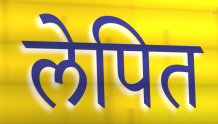
लेपित